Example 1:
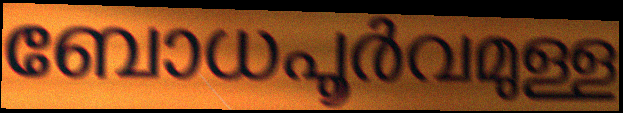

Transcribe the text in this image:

ബോധപൂർവമുള്ള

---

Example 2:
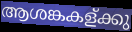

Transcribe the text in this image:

ആശങ്കകള്ക്കു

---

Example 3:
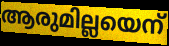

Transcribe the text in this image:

ആരുമില്ലയെന്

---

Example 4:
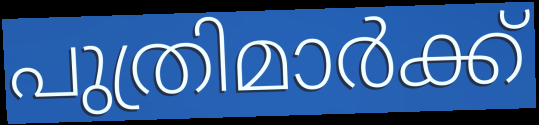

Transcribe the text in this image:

പുത്രിമാർക്ക്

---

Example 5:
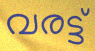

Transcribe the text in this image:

വരട്ട്